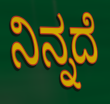
ನಿನ್ನದೆ